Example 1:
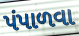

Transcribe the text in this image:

પંપાળવા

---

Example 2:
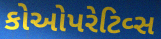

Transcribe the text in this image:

કોઓપરેટિવ્સ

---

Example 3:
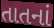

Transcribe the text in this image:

તાતનાં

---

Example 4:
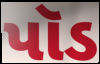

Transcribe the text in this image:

પૉડ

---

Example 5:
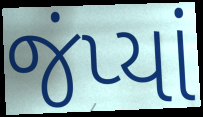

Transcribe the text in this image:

જંપ્યાં